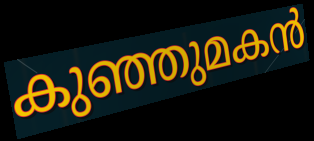
കുഞ്ഞുമകൻ